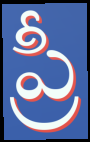
ప్రీ